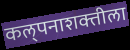
कल्पनाशक्तीला